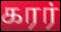
கரர்